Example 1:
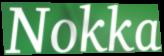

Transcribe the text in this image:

Nokka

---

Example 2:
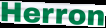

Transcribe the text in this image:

Herron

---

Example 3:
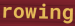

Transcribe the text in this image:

rowing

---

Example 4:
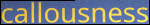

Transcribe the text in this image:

callousness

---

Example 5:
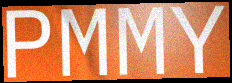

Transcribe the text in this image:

PMMY